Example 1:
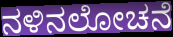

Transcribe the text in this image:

ನಳಿನಲೋಚನೆ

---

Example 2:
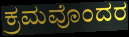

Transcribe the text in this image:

ಕ್ರಮವೊಂದರ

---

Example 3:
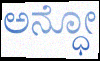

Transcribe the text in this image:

ಅನ್ಧೋ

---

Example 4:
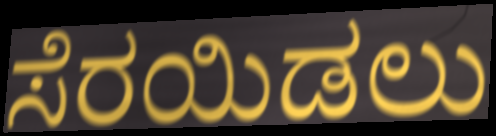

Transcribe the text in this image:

ಸೆರಯಿಡಲು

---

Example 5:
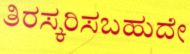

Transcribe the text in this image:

ತಿರಸ್ಕರಿಸಬಹುದೇ